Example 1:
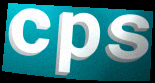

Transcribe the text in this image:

cps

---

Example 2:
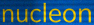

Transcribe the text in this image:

nucleon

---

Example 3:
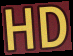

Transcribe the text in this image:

HD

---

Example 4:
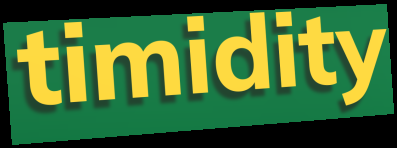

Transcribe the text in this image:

timidity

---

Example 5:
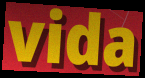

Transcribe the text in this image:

vida